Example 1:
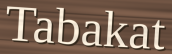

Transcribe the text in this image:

Tabakat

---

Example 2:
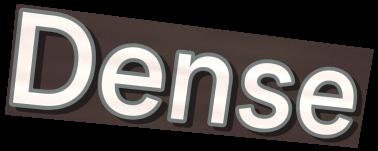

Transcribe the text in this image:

Dense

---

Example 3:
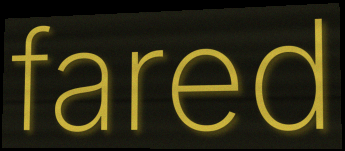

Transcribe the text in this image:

fared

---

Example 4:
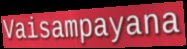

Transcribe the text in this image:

Vaisampayana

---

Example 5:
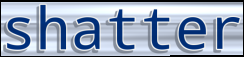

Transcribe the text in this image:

shatter